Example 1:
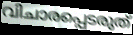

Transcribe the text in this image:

വിചാരപ്പെടരുത്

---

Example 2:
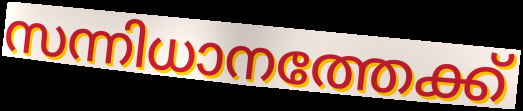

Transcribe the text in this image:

സന്നിധാനത്തേക്ക്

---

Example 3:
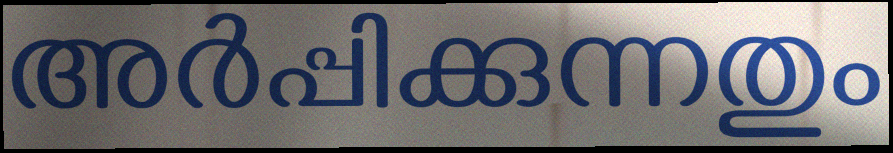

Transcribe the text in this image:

അർപ്പിക്കുന്നതും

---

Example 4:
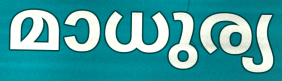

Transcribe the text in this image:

മാധുര്യ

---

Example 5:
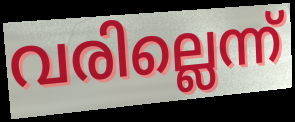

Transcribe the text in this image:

വരില്ലെന്ന്